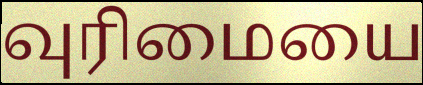
வுரிமையை